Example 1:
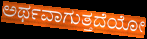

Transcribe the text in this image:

ಅರ್ಥವಾಗುತ್ತದೆಯೋ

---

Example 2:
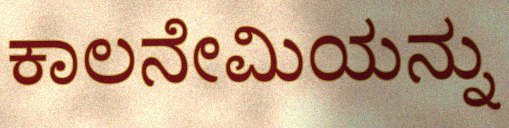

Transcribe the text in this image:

ಕಾಲನೇಮಿಯನ್ನು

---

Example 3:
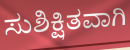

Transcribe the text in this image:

ಸುಶಿಕ್ಷಿತವಾಗಿ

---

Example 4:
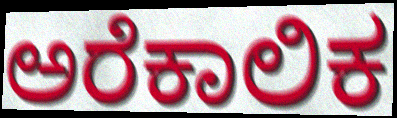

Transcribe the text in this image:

ಅರೆಕಾಲಿಕ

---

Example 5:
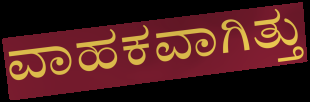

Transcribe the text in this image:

ವಾಹಕವಾಗಿತ್ತು